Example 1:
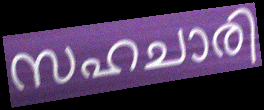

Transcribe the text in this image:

സഹചാരി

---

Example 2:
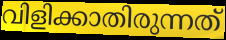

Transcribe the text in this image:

വിളിക്കാതിരുന്നത്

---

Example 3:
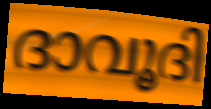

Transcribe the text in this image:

ദാവൂദി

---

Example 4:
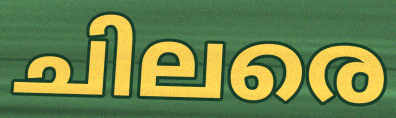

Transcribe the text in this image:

ചിലരെ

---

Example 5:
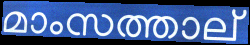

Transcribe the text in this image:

മാംസത്താല്